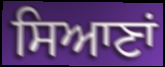
ਸਿਆਣਾਂ